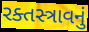
રક્તસ્ત્રાવનું